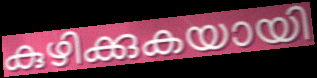
കുഴിക്കുകയായി